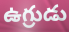
ఉగ్రుడు